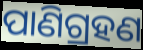
ପାଣିଗ୍ରହଣ